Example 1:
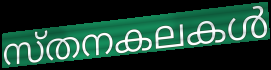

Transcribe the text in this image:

സ്തനകലകൾ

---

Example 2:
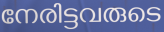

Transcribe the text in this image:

നേരിട്ടവരുടെ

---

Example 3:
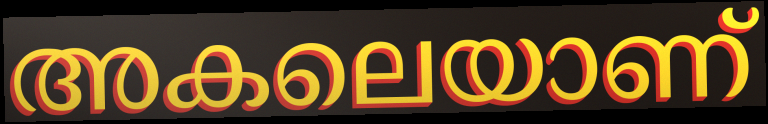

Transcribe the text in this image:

അകലെയാണ്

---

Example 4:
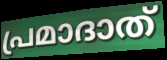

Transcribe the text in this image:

പ്രമാദാത്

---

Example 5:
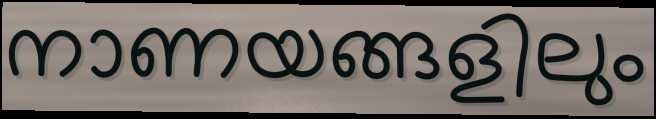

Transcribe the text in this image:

നാണയങ്ങളിലും